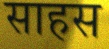
साहस